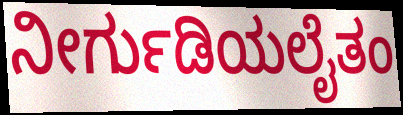
ನೀರ್ಗುಡಿಯಲೈತಂ